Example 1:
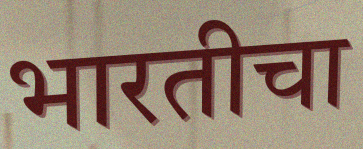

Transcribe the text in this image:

भारतीचा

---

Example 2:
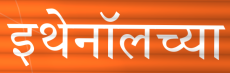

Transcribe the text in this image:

इथेनॉलच्या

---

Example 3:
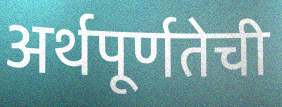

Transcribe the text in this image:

अर्थपूर्णतेची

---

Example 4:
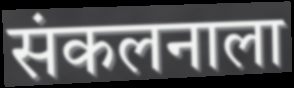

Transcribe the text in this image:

संकलनाला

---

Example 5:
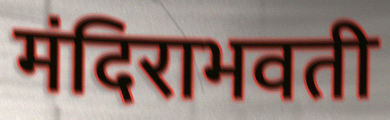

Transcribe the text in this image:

मंदिराभवती